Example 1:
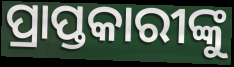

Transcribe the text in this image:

ପ୍ରାପ୍ତକାରୀଙ୍କୁ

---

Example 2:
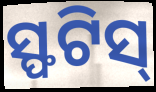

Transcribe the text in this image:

ସ୍ଫଟିସ୍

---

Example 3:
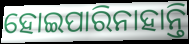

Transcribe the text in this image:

ହୋଇପାରିନାହାନ୍ତି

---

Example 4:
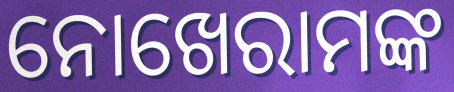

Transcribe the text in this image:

ନୋଖେରାମଙ୍କ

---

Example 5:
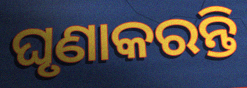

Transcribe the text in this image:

ଘୃଣାକରନ୍ତି